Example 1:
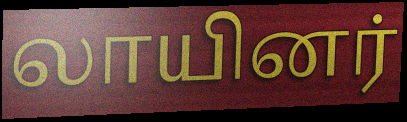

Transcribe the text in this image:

லாயினர்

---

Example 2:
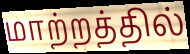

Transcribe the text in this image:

மாற்றத்தில்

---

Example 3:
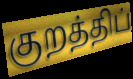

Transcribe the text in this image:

குறத்திப்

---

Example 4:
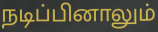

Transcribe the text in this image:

நடிப்பினாலும்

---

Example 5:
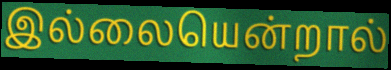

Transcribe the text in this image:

இல்லையென்றால்